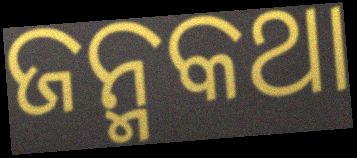
ଜନ୍ମକଥା